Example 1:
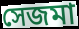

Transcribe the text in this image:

সেজমা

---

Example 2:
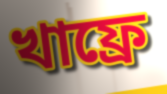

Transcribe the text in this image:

খাফ্রে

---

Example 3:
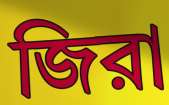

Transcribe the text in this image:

জিরা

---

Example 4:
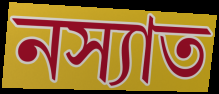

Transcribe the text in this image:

নস্যাত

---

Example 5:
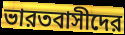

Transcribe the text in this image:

ভারতবাসীদের